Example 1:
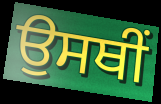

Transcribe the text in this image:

ਉਸਥੀਂ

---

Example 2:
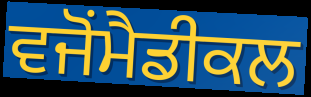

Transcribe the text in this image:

ਵਜੋਂਮੈਡੀਕਲ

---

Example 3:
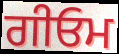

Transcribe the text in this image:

ਗੀਓਮ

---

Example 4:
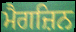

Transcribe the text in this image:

ਮੈਗਜ਼ਿਨ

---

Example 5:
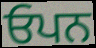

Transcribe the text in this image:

ਓਪਨ